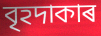
বৃহদাকাৰ